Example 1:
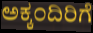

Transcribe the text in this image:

ಅಕ್ಕಂದಿರಿಗೆ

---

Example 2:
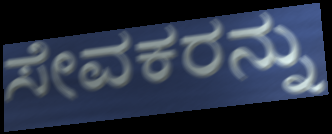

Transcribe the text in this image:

ಸೇವಕರನ್ನು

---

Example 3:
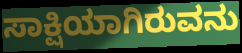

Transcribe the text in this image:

ಸಾಕ್ಷಿಯಾಗಿರುವನು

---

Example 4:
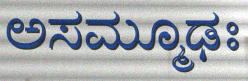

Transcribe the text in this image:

ಅಸಮ್ಮೂಢಃ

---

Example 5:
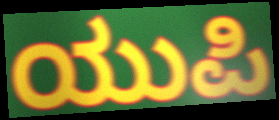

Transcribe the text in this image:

ಯುಪಿ